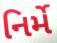
નિર્મે